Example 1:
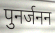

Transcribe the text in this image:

पुनर्जनन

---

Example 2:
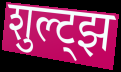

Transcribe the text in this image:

शुल्ट्झ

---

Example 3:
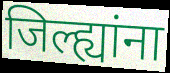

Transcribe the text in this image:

जिल्ह्यांना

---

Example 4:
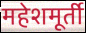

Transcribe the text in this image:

महेशमूर्ती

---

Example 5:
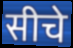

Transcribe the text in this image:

सीचे